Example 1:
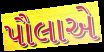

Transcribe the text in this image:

પૌલાએ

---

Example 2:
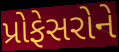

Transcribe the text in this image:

પ્રોફેસરોને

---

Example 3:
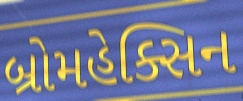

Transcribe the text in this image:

બ્રોમહેક્સિન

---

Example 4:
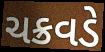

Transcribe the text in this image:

ચક્રવડે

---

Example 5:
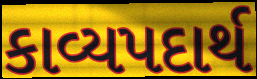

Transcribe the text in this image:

કાવ્યપદાર્થ